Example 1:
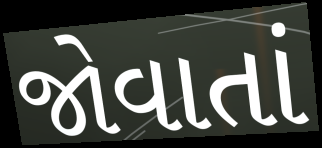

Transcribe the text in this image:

જોવાતાં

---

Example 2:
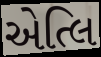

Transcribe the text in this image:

એત્લિ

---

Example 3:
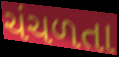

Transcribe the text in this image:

ચંચળતા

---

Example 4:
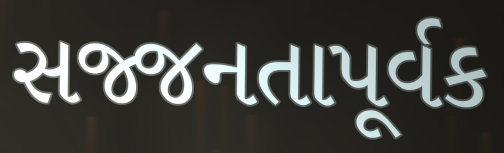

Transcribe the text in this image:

સજ્જનતાપૂર્વક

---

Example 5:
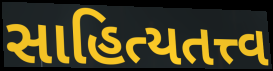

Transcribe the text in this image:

સાહિત્યતત્ત્વ